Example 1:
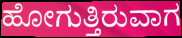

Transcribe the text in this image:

ಹೋಗುತ್ತಿರುವಾಗ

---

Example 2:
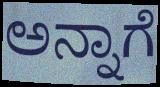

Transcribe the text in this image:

ಅನ್ನಾಗೆ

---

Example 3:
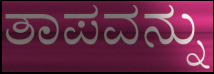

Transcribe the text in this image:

ತಾಪವನ್ನು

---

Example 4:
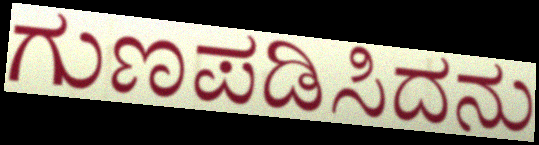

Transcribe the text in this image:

ಗುಣಪಡಿಸಿದನು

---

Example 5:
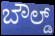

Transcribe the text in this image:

ಬೌಲ್ಡ್